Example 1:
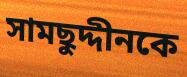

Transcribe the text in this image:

সামছুদ্দীনকে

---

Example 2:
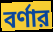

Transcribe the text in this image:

বর্ণার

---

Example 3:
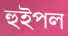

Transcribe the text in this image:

হুইপল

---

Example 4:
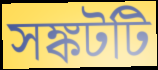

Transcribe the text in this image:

সঙ্কটটি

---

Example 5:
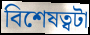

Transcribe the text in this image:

বিশেষত্বটা